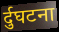
र्दुघटना